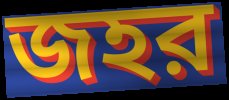
জহর